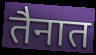
तैनात